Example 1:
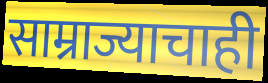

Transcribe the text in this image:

साम्राज्याचाही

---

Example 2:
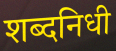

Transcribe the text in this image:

शब्दनिधी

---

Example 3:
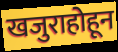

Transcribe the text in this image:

खजुराहोहून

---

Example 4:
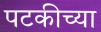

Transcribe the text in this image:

पटकीच्या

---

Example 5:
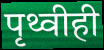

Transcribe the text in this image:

पृथ्वीही